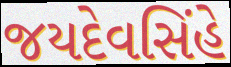
જયદેવસિંહે